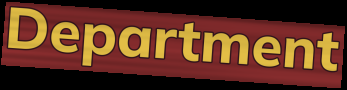
Department